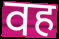
वह